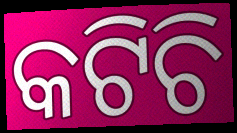
କଟିଚି